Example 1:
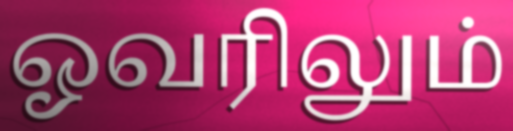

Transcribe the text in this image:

ஓவரிலும்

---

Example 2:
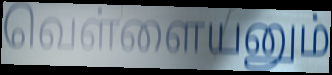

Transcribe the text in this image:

வெள்ளையனும்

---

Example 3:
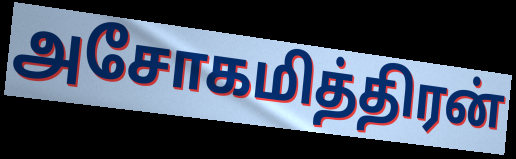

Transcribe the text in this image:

அசோகமித்திரன்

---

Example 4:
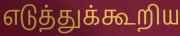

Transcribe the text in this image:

எடுத்துக்கூறிய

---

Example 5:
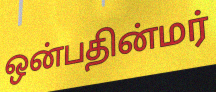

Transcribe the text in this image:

ஒன்பதின்மர்